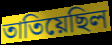
তাতিয়েছিল